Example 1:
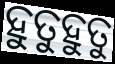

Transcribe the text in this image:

ହୁତୁହୁତୁ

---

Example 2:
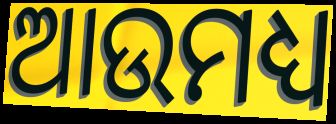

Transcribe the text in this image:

ଆଉମଧ୍ୟ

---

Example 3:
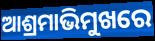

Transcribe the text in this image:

ଆଶ୍ରମାଭିମୁଖରେ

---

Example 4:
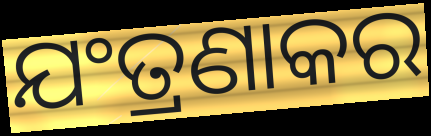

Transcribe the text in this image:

ଯଂତ୍ରଣାକର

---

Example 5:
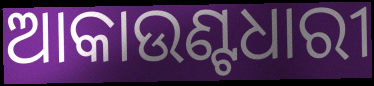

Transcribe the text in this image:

ଆକାଉଣ୍ଟଧାରୀ